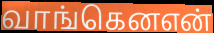
வாங்கெனஎன்